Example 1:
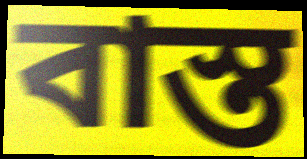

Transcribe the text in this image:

বাস্ত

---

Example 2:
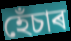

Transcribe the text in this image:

হেঁচাৰ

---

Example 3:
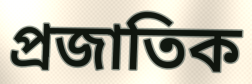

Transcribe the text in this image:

প্ৰজাতিক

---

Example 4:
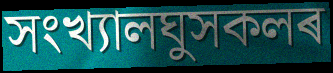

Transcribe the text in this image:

সংখ্যালঘুসকলৰ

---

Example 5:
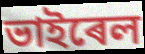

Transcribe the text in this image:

ভাইৰেল